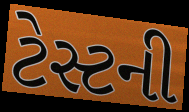
ટેસ્ટની